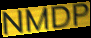
NMDP